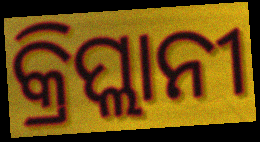
କ୍ରିପ୍ଲାନୀ